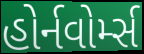
હોર્નવોર્મ્સ